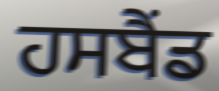
ਹਸਬੈਂਡ